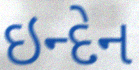
ઇન્દેન